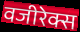
वजीरेक्स